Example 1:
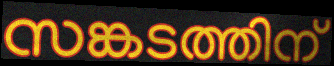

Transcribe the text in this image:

സങ്കടത്തിന്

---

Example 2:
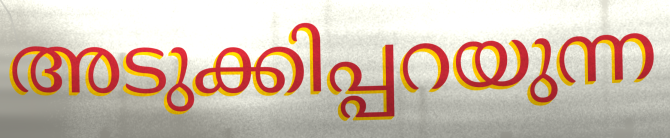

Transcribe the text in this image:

അടുക്കിപ്പറയുന്ന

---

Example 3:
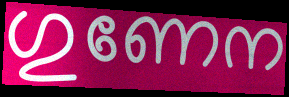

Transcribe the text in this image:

ഗുണേന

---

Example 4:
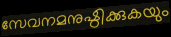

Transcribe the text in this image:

സേവനമനുഷ്ഠിക്കുകയും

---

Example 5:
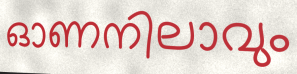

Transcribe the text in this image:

ഓണനിലാവും